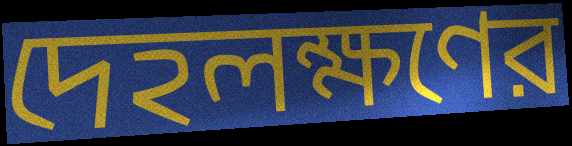
দেহলক্ষণের